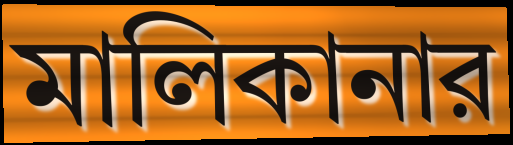
মালিকানার